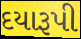
દયારૂપી